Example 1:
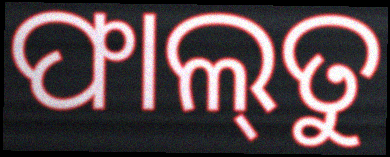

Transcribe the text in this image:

ଫାଲ୍‌ତୁ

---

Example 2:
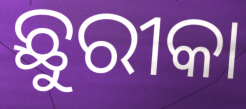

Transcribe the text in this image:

ଛୁରୀକା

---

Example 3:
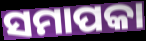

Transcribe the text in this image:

ସମାପକା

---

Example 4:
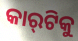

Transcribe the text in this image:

କାର୍‌ଟିକୁ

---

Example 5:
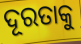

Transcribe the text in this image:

ଦୂରତାକୁ